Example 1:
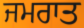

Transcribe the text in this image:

ਜਮਰਾਤ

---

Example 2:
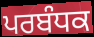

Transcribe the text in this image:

ਪਰਬੰਧਕ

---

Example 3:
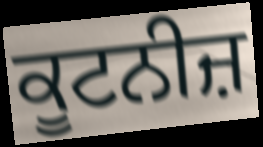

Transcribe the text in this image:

ਕੂਟਨੀਜ਼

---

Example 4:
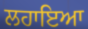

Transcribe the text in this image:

ਲਹਾਇਆ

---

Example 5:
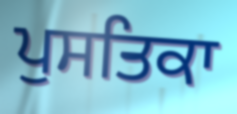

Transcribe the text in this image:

ਪੁਸਤਿਕਾ